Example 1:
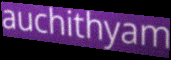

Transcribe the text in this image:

auchithyam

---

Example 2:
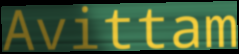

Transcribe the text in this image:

Avittam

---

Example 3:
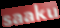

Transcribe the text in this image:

saaku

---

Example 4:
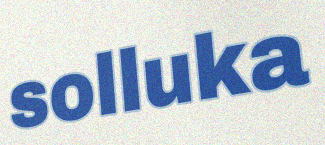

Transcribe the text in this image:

solluka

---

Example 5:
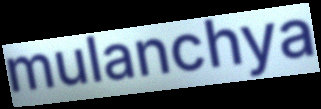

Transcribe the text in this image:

mulanchya